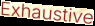
Exhaustive